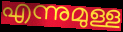
എന്നുമുള്ള